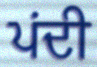
ਪਂਦੀ